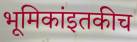
भूमिकांइतकीच